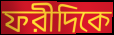
ফরীদিকে